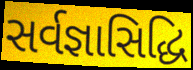
સર્વજ્ઞાસિદ્ધિ